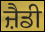
ਜ਼ੈਡੀ